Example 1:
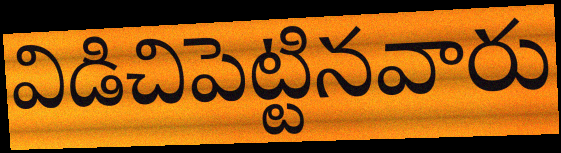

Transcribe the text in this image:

విడిచిపెట్టినవారు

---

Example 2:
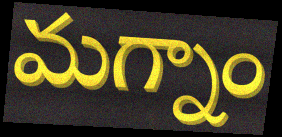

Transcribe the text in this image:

మగ్నాం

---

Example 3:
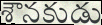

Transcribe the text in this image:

శౌనకుడు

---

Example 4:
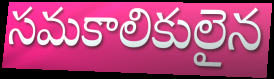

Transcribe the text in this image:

సమకాలికులైన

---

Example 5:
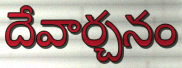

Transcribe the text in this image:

దేవార్చనం